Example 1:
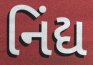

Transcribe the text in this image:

નિંદ્ય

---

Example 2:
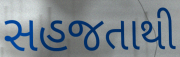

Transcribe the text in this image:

સહજતાથી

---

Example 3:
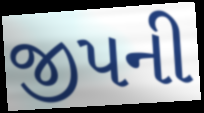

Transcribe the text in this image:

જીપની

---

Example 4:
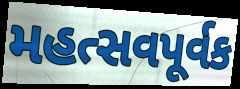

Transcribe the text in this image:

મહત્સવપૂર્વક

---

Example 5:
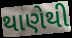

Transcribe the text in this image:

થાણેથી